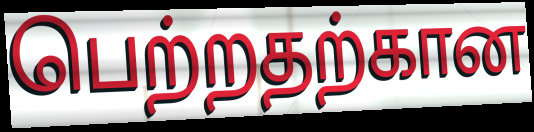
பெற்றதற்கான